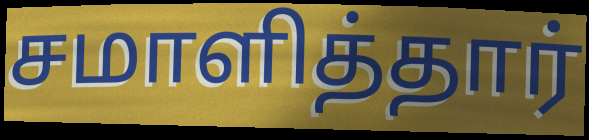
சமாளித்தார்